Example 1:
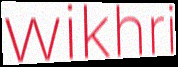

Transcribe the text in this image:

wikhri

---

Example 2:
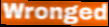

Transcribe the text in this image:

Wronged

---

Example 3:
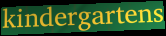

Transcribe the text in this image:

kindergartens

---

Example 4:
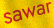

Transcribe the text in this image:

sawar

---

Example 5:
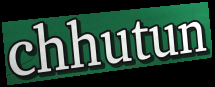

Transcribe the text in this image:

chhutun